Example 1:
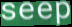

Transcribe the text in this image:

seep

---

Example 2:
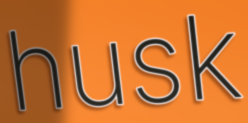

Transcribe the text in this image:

husk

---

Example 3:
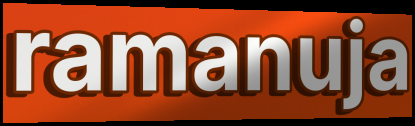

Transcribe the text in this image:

ramanuja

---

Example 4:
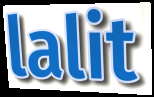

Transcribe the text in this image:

lalit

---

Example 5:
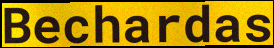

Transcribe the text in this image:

Bechardas